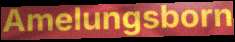
Amelungsborn